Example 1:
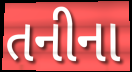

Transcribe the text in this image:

તનીના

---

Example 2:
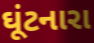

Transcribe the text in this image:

ઘૂંટનારા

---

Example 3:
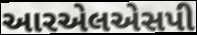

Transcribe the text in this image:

આરએલએસપી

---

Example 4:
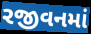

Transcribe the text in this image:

રજીવનમાં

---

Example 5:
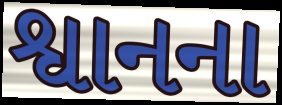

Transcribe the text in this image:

શ્વાનના